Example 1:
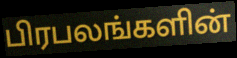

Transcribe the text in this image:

பிரபலங்களின்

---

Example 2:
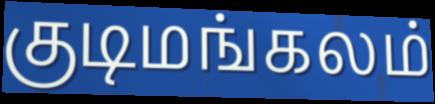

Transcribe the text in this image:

குடிமங்கலம்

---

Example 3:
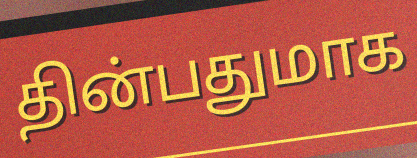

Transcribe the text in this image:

தின்பதுமாக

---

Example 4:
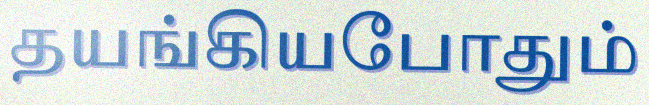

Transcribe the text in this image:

தயங்கியபோதும்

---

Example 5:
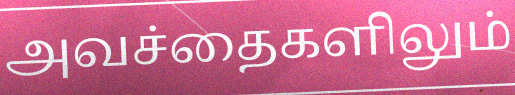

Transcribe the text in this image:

அவச்தைகளிலும்